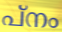
പ്നം